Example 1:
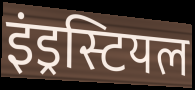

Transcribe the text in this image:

इंड्रस्टियल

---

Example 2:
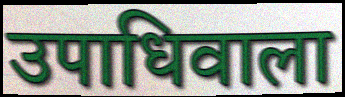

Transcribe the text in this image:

उपाधिवाला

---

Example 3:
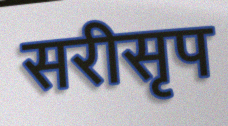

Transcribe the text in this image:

सरीसृप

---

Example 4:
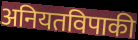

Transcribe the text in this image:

अनियतविपाकी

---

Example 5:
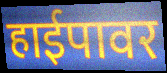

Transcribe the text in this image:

हाईपावर